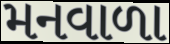
મનવાળા